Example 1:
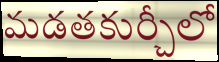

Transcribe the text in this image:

మడతకుర్చీలో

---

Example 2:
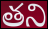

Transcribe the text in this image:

తని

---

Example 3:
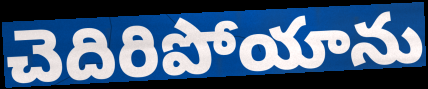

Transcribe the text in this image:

చెదిరిపోయాను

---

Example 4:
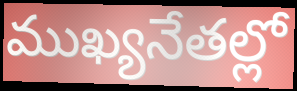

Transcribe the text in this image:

ముఖ్యనేతల్లో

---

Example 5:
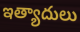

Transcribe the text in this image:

ఇత్యాదులు